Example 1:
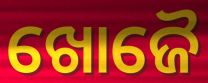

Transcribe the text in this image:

ଖୋଜୈ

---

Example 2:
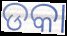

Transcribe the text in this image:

ଡକା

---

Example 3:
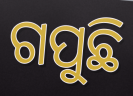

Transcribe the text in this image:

ଗପୁଛି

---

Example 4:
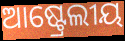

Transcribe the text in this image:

ଆଷ୍ଟ୍ରେଲୀୟ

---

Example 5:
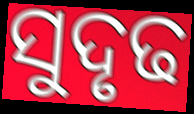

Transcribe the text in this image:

ସୁଦୃଢ